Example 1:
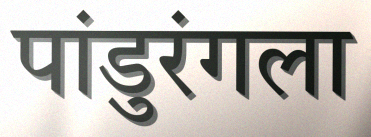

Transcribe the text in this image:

पांडुरंगला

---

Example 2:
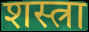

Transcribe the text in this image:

शस्त्रा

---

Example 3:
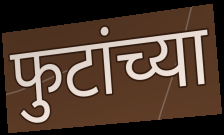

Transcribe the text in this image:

फुटांच्‍या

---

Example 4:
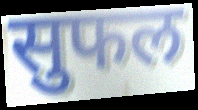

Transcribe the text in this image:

सुफल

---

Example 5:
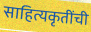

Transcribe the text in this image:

साहित्यकृतींची